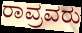
ರಾವ್ರವರು